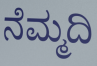
ನೆಮ್ಮದಿ